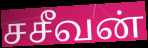
சசீவன்